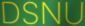
DSNU